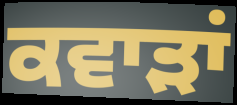
ਕਵਾੜਾਂ